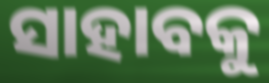
ସାହାବକୁ